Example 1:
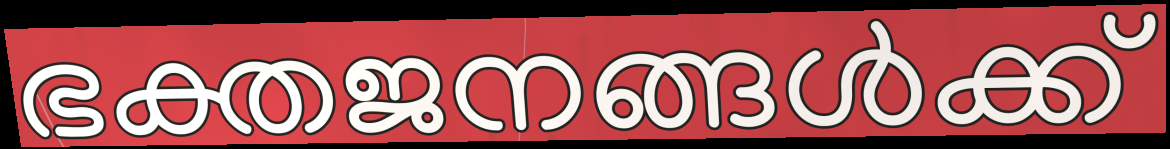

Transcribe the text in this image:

ഭക്തജനങ്ങൾക്ക്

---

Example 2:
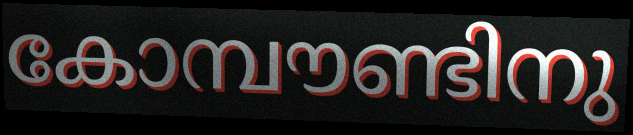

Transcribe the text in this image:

കോമ്പൗണ്ടിനു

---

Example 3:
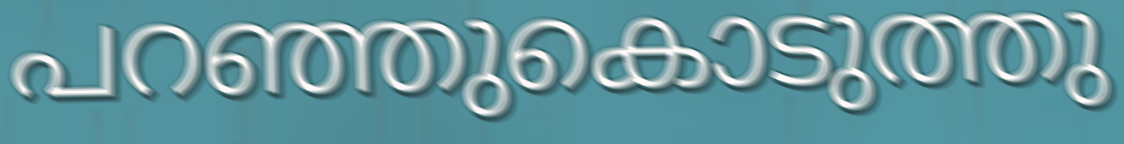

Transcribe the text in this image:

പറഞ്ഞുകൊടുത്തു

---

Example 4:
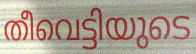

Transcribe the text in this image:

തീവെട്ടിയുടെ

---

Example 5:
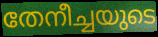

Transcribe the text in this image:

തേനീച്ചയുടെ